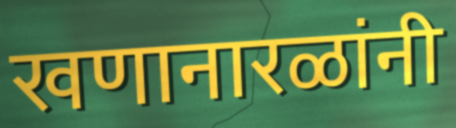
खणानारळांनी